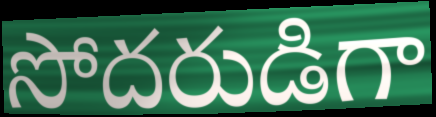
సోదరుడిగా